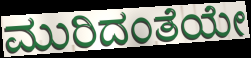
ಮುರಿದಂತೆಯೇ